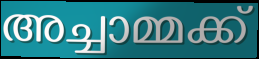
അച്ചാമ്മക്ക്